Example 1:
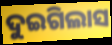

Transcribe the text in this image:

ଦୁଇଗିଲାସ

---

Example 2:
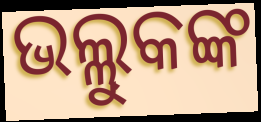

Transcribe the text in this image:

ଭଲ୍ଲୁକଙ୍କ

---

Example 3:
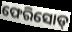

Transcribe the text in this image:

ଫେରିସୋଡ୍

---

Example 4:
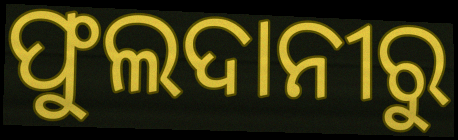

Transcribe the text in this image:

ଫୁଲଦାନୀରୁ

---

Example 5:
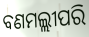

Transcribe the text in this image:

ବଣମଲ୍ଲୀପରି